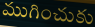
ముగించుకు